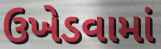
ઉખેડવામાં